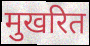
मुखरित